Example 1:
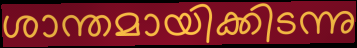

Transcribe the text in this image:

ശാന്തമായിക്കിടന്നു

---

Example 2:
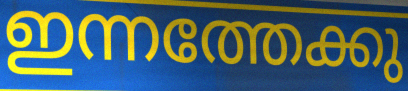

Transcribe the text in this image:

ഇന്നത്തേക്കു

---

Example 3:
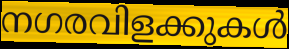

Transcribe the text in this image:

നഗരവിളക്കുകൾ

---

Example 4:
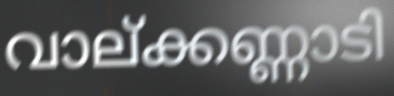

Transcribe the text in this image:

വാല്ക്കണ്ണാടി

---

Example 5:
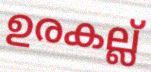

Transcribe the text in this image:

ഉരകല്ല്